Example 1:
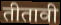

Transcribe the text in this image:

तीतावी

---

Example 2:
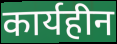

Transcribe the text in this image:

कार्यहीन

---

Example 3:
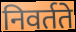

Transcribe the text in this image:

निवर्तते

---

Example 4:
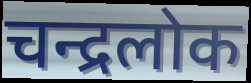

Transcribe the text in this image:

चन्द्रलोक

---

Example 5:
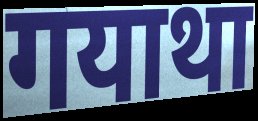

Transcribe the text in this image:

गयाथा